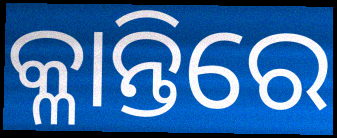
କ୍ଳାନ୍ତିରେ